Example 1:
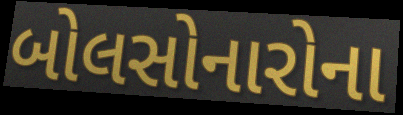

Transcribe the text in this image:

બોલસોનારોના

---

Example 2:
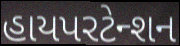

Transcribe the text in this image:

હાયપરટેન્શન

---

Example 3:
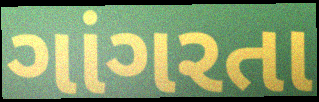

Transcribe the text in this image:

ગાંગરતા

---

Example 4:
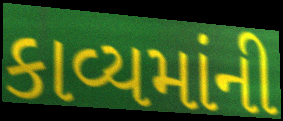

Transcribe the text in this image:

કાવ્યમાંની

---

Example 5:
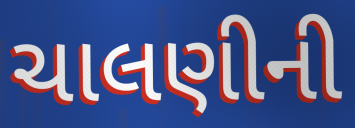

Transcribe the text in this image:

ચાલણીની